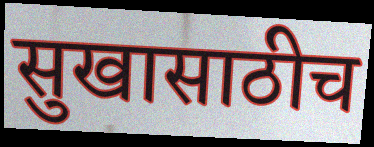
सुखासाठीच